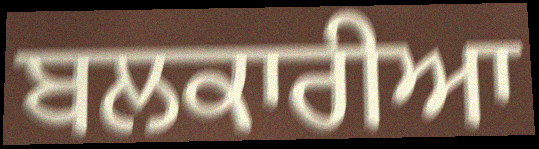
ਬਲਕਾਰੀਆ